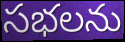
సభలను